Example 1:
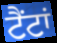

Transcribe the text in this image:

ਟੈਂਟਾਂ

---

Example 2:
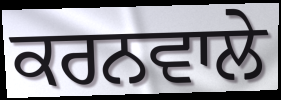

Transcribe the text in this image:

ਕਰਨਵਾਲੇ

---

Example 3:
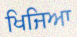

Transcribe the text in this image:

ਖਿਜਿਆ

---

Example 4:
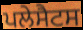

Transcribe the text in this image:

ਪਲੇਸੈਟਸ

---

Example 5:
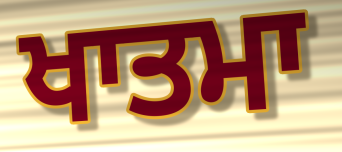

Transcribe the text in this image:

ਖਾਤਮਾ